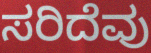
ಸರಿದೆವು